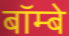
बॉम्बे